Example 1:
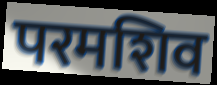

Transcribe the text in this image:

परमशिव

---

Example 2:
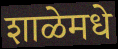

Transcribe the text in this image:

शाळेमधे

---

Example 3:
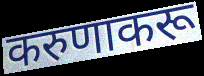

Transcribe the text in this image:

करुणाकरू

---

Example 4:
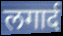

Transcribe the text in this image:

लगार्द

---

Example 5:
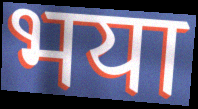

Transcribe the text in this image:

भया